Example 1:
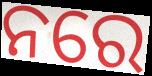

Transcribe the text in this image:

ନରେ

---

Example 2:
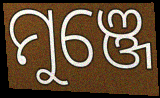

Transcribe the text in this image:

ମୁଞ୍ଜେ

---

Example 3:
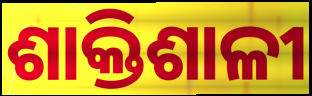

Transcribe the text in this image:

ଶାକ୍ତିଶାଳୀ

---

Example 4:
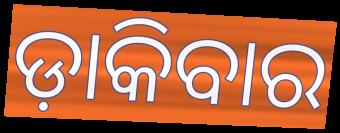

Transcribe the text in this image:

ଡ଼ାକିବାର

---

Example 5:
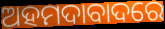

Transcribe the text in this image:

ଅହମଦାବାଦରେ